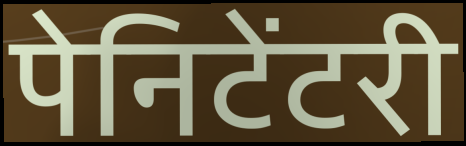
पेनिटेंटरी